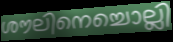
ശൗലിനെച്ചൊല്ലി